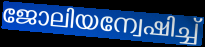
ജോലിയന്വേഷിച്ച്